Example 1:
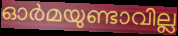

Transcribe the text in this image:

ഓർമയുണ്ടാവില്ല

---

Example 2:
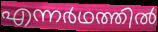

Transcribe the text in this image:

എന്നർഥത്തിൽ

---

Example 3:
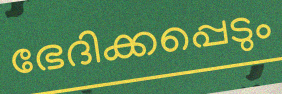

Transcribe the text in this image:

ഭേദിക്കപ്പെടും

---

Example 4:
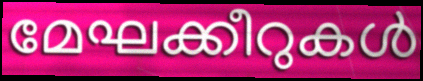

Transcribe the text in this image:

മേഘക്കീറുകൾ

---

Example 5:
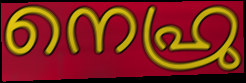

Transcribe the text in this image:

നെഹ്രു